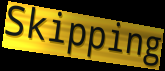
Skipping